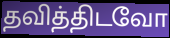
தவித்திடவோ